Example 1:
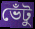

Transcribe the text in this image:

ভেঁটু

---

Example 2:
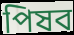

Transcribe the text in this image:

পিষব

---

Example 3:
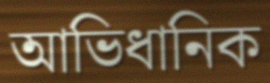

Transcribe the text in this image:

আভিধানিক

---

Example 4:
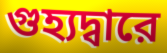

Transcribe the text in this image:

গুহ্যদ্বারে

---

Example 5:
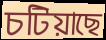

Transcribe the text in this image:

চটিয়াছে